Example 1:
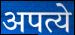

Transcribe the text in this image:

अपत्ये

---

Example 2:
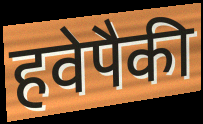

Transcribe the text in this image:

हवेपैकी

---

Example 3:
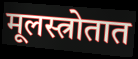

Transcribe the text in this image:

मूलस्त्रोतात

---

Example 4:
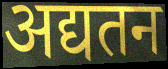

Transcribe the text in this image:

अद्यतन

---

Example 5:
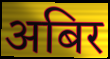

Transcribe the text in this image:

अबिर